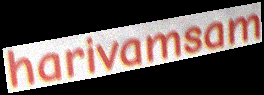
harivamsam